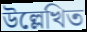
উল্লেখিত